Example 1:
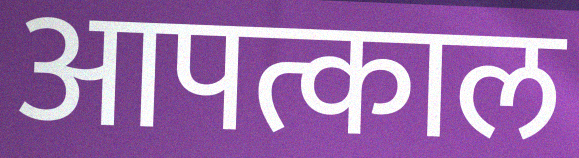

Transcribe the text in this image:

आपत्काल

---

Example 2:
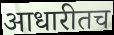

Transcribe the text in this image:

आधारीतच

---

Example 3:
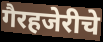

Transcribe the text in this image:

गैरहजेरीचे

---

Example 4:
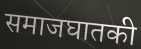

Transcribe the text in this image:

समाजघातकी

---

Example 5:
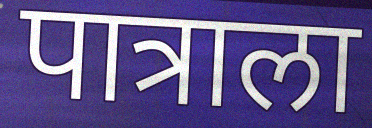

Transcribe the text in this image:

पात्राला